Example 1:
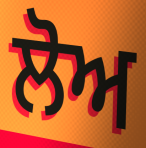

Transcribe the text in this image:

ਲੋਅ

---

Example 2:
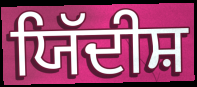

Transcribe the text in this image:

ਯਿੱਦੀਸ਼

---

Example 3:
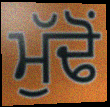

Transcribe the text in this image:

ਮੁੱਢੋਂ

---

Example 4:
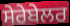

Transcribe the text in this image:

ਸੇਰੇਬੇਲਰ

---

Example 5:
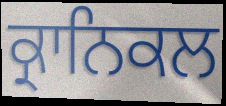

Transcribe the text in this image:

ਕ੍ਰਾਨਿਕਲ